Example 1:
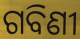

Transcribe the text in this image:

ଗବିଣୀ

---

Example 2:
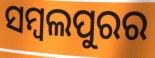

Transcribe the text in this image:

ସମ୍ୱଲପୁରର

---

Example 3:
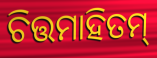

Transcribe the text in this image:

ଚିତ୍ତମାହିତମ୍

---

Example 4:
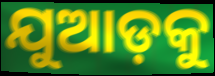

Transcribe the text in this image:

ଯୁଆଡ଼କୁ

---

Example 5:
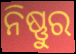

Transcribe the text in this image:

ନିଷ୍ଣୁର